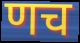
णच